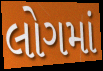
લોગમાં